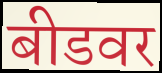
बीडवर